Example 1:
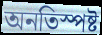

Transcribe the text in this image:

অনতিস্পষ্ট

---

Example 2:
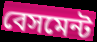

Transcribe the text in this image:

বেসমেন্ট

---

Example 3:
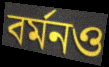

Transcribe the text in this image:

বর্মনও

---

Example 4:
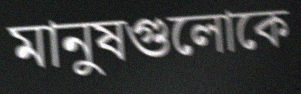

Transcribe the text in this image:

মানুষগুলোকে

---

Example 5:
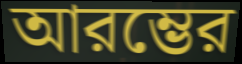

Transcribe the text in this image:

আরম্ভের